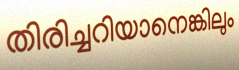
തിരിച്ചറിയാനെങ്കിലും